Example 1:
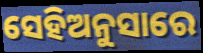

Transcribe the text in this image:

ସେହିଅନୁସାରେ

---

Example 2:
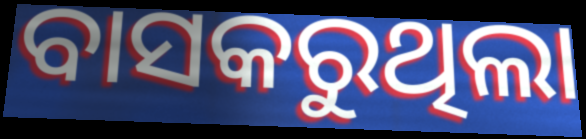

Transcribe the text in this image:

ବାସକରୁଥିଲା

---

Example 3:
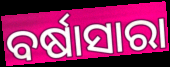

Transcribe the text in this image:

ବର୍ଷାସାରା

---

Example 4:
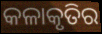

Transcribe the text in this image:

କଳାକୃତିର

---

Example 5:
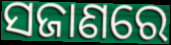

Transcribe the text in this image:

ସଜାଣରେ